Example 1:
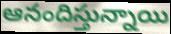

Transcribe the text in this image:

ఆనందిస్తున్నాయి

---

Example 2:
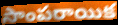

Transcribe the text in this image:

సాంపరాయిక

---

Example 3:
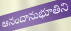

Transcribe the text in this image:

ఆనందానుభూతిని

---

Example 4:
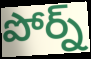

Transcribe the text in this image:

పోర్న్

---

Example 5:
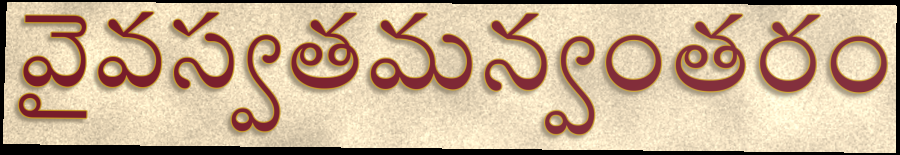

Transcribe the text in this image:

వైవస్వతమన్వంతరం